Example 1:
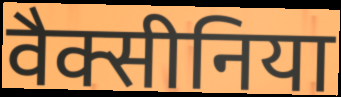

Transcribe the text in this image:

वैक्सीनिया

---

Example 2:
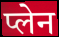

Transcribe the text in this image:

प्लेन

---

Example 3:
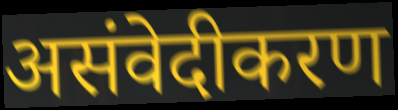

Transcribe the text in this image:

असंवेदीकरण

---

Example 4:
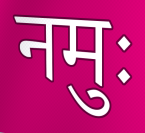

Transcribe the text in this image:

नमुः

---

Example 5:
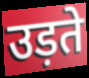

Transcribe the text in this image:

उड़ते